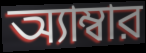
অ্যাম্বার